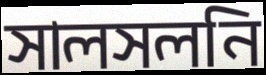
সালসলনি